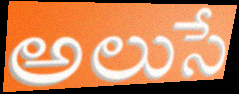
అలుసే